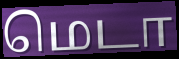
மெடா